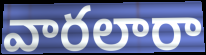
వారలారా